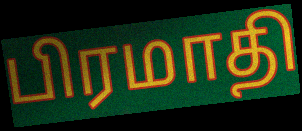
பிரமாதி